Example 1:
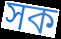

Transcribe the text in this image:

সক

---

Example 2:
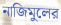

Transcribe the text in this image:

নাজিমুলের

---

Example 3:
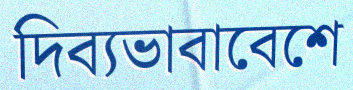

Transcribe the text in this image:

দিব্যভাবাবেশে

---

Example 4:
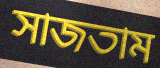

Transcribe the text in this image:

সাজতাম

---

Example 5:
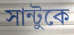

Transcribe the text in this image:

সান্টুকে